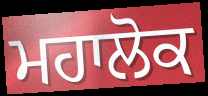
ਮਹਾਲੋਕ